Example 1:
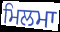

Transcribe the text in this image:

ਮਿਲਮਾ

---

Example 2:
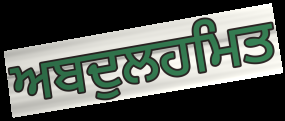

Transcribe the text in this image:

ਅਬਦੁਲਹਮਿਤ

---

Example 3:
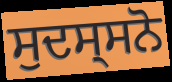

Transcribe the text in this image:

ਸੁਦਸ੍ਸਨੋ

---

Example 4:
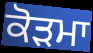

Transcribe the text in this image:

ਕੋੜਮਾ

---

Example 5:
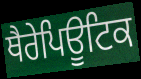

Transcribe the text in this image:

ਥੈਰੇਪਿਊਟਿਕ